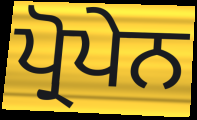
ਪ੍ਰੋਪੇਨ